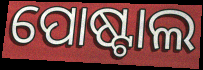
ପୋଷ୍ଟାଲ